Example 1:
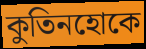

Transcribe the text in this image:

কুতিনহোকে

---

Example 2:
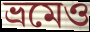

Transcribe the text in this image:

ভ্রমেও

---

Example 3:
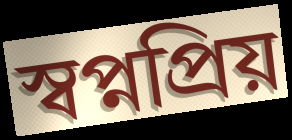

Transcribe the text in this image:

স্বপ্নপ্রিয়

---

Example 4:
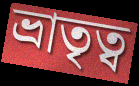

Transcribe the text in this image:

ভ্রাতৃত্ব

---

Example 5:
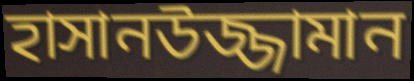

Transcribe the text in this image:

হাসানউজ্জামান